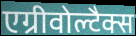
एग्रीवोल्टैक्स